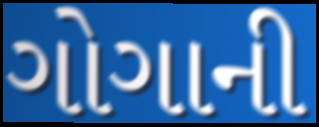
ગોગાની